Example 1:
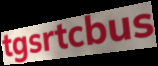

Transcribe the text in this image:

tgsrtcbus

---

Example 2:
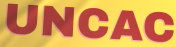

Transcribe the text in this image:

UNCAC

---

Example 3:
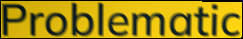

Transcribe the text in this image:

Problematic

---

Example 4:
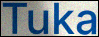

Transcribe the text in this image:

Tuka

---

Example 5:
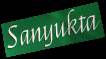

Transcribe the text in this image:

Sanyukta